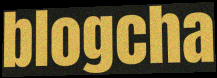
blogcha